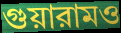
গুয়ারামও